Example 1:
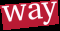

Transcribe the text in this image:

way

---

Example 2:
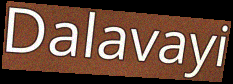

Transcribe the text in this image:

Dalavayi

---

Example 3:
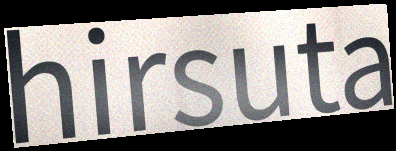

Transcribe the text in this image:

hirsuta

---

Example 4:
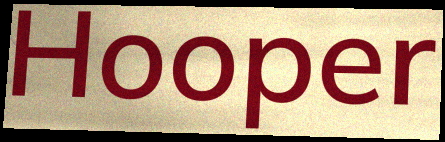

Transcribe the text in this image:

Hooper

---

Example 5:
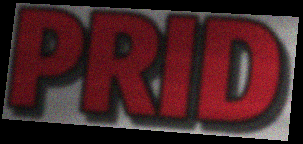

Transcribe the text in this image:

PRID